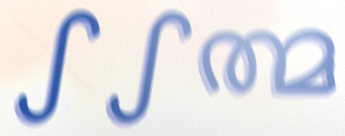
ഽഽത്മ